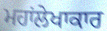
ਮਹਾਂਲੇਖਾਕਾਰ